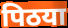
पिठया